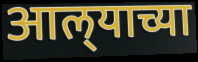
आल्याच्या